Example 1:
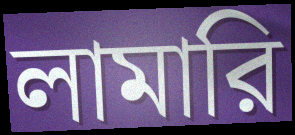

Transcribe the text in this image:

লামারি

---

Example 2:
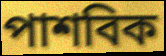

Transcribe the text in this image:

পাশবিক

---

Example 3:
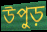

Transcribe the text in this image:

উপুড়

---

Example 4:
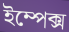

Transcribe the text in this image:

ইম্পেক্স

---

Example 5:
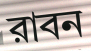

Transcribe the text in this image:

রাবন